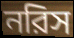
নরিস